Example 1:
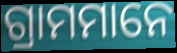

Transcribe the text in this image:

ଗ୍ରାମମାନେ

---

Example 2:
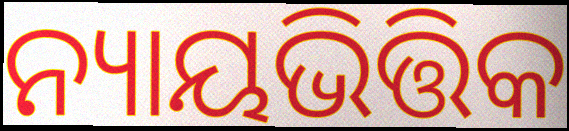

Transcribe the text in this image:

ନ୍ୟାୟଭିତ୍ତିକ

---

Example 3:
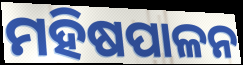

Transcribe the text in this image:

ମହିଷପାଳନ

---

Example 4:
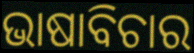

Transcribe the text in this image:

ଭାଷାବିଚାର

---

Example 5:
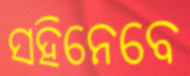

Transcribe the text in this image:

ସହିନେବେ